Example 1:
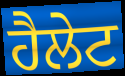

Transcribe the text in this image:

ਹੈਲੇਟ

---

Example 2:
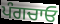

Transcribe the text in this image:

ਪੰਗਚਾਓ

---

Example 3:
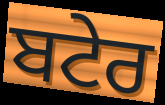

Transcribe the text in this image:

ਬਟੇਰ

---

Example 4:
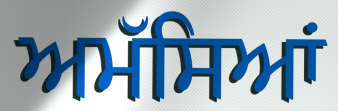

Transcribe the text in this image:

ਅਮੱਸਿਆਂ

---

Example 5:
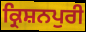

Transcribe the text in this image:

ਕ੍ਰਿਸ਼ਨਪੁਰੀ